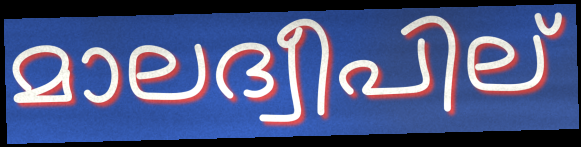
മാലദ്വീപില്